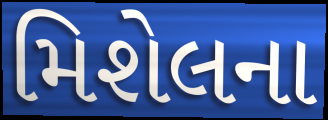
મિશેલના